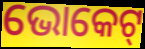
ଭୋକେଟ୍